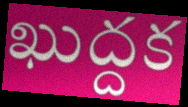
ఖుద్దక